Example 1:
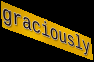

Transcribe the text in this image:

graciously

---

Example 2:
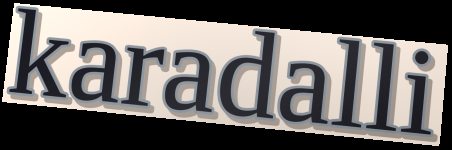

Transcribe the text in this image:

karadalli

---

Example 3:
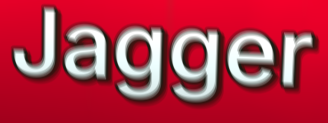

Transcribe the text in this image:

Jagger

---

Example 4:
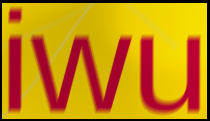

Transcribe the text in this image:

iwu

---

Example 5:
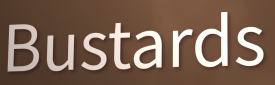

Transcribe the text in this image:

Bustards